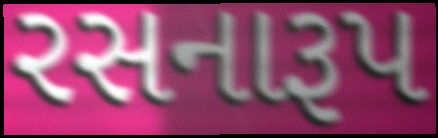
રસનારૂપ